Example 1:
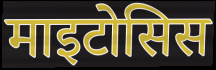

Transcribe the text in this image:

माइटोसिस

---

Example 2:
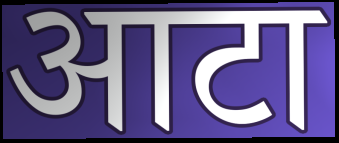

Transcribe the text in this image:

आटा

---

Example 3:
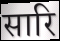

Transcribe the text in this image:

सारि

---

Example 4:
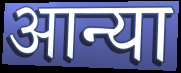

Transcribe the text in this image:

आन्या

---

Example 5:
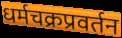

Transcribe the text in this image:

धर्मचक्रप्रवर्तन